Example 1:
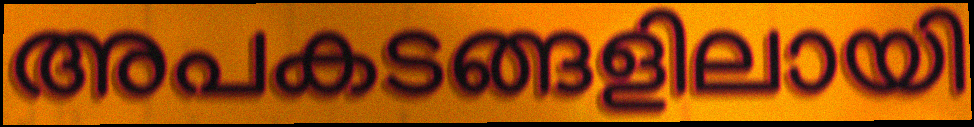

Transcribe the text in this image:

അപകടങ്ങളിലായി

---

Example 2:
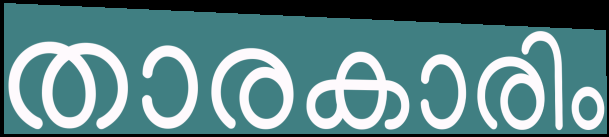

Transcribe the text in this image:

താരകാരിം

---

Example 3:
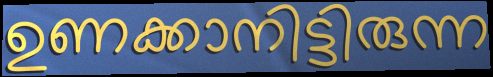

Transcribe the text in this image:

ഉണക്കാനിട്ടിരുന്ന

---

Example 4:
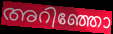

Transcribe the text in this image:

അറിഞ്ഞോ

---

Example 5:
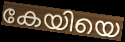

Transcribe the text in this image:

കേയിയെ